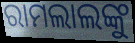
ରାମଲାଲଙ୍କୁ